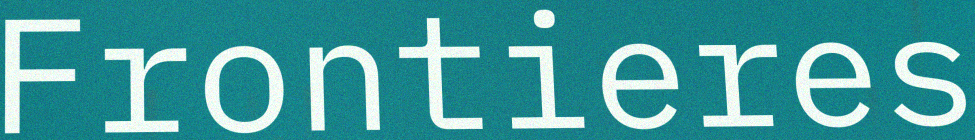
Frontieres